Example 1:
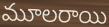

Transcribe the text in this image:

మూలరాయి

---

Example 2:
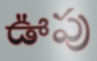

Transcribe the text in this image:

ఊపు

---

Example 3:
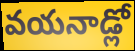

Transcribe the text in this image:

వయనాడ్లో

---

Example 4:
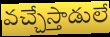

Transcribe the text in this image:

వచ్చేస్తాడులే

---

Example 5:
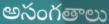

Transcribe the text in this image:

అసంగతాలు